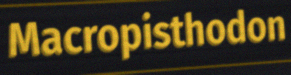
Macropisthodon